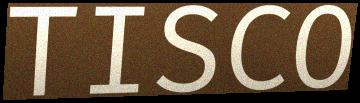
TISCO